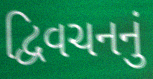
દ્વિવચનનું